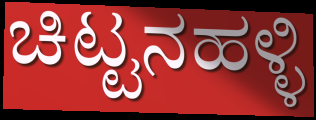
ಚಿಟ್ಟನಹಳ್ಳಿ